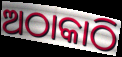
ଅଠାକାଠି